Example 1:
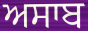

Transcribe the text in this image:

ਅਸਾਬ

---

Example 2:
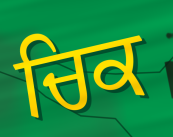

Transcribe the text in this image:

ਚਿਕ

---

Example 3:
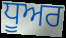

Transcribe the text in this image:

ਧੂਅਰ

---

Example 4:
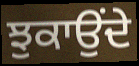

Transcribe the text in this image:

ਝੁਕਾਉਂਦੇ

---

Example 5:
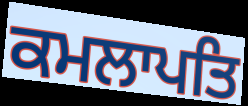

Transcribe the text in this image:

ਕਮਲਾਪਤਿ